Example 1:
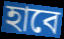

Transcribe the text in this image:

হাবে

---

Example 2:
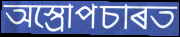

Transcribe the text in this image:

অস্ত্ৰোপচাৰত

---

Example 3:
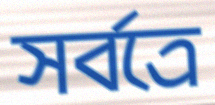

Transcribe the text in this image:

সৰ্বত্ৰে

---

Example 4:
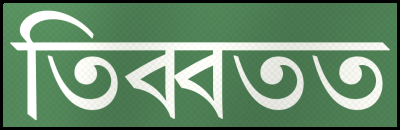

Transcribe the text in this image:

তিব্বতত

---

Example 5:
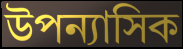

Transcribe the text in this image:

উপন্যাসিক